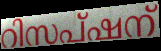
റിസപ്ഷന്